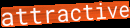
attractive